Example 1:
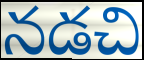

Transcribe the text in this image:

నడచి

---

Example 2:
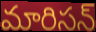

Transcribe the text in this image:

మారిసన్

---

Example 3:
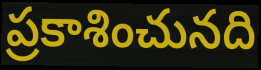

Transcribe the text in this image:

ప్రకాశించునది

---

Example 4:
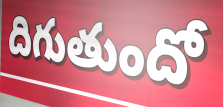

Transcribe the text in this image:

దిగుతుందో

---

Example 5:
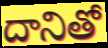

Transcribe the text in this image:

దానితో